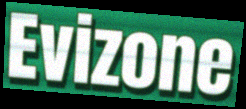
Evizone